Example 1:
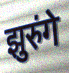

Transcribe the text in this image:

झुरुंगे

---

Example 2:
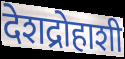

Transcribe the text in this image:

देशद्रोहाशी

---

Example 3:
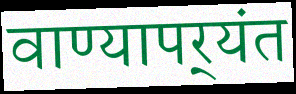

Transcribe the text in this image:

वाण्यापर्यंत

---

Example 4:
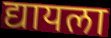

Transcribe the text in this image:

द्यायला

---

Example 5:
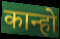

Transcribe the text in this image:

कान्हो